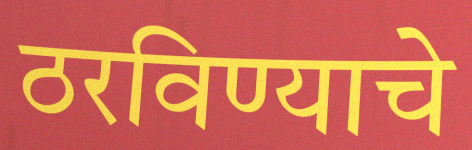
ठरविण्याचे